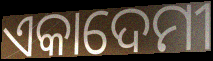
ଏକାଦେମୀ